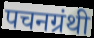
पचनग्रंथी